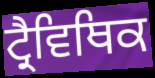
ਟ੍ਰੈਵਿਥਿਕ